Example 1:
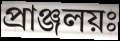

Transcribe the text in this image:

প্রাঞ্জলয়ঃ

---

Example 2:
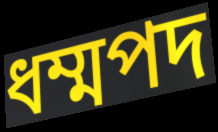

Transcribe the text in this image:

ধম্মপদ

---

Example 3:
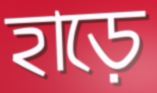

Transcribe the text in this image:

হাড়ে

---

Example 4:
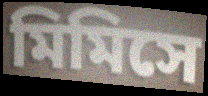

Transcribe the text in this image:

মিমিসে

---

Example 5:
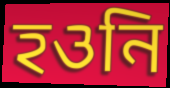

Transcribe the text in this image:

হওনি